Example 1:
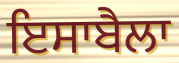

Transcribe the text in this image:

ਇਸਾਬੈਲਾ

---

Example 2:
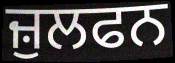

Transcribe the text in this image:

ਜ਼ੁਲਫਨ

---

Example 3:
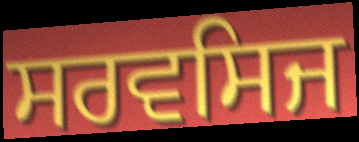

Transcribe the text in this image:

ਸਰਵਸਿਜ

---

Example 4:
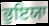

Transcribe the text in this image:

ਭੁਇਯਾ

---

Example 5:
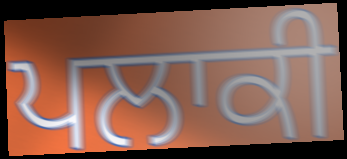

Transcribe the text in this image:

ਪਲਾਕੀ